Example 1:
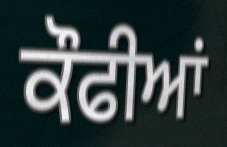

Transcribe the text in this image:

ਕੌਫੀਆਂ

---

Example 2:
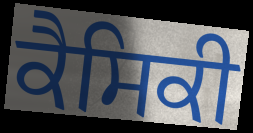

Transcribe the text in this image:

ਕੈਸਿਕੀ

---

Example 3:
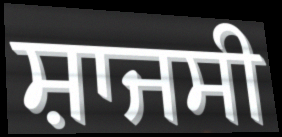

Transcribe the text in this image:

ਸ਼ਾਜਸੀ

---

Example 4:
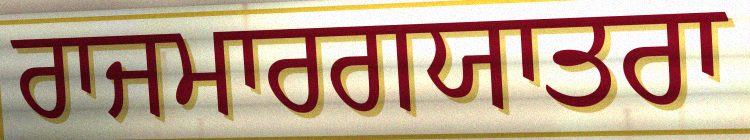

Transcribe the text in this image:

ਰਾਜਮਾਰਗਯਾਤਰਾ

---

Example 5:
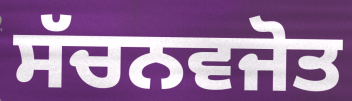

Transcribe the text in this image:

ਸੱਚਨਵਜੋਤ